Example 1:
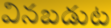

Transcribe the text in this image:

వినబడుట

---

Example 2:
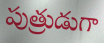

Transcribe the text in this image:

పుత్రుడుగా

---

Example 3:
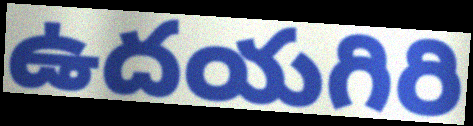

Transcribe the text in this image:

ఉదయగిరి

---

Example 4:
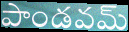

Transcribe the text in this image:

పాండవమ్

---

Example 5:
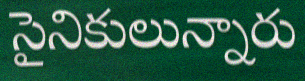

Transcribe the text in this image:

సైనికులున్నారు